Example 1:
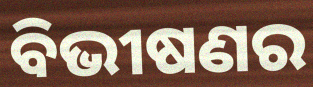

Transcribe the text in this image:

ବିଭୀଷଣର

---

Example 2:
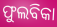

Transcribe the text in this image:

ଫୁଲବିକା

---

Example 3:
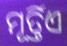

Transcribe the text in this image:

ମୂର୍ତ୍ତିଏ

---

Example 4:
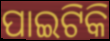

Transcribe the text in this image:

ପାଇଟିକି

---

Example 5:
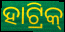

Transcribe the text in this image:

ହାଟ୍ରିକ୍